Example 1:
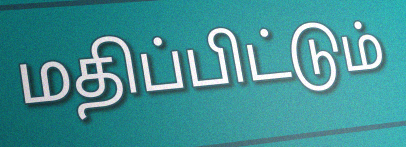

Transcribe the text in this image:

மதிப்பிட்டும்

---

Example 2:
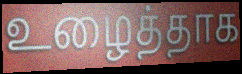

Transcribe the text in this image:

உழைத்தாக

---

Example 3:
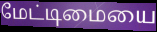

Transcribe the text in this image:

மேட்டிமையை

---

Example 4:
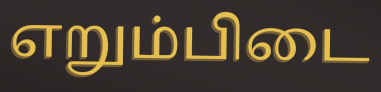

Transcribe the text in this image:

எறும்பிடை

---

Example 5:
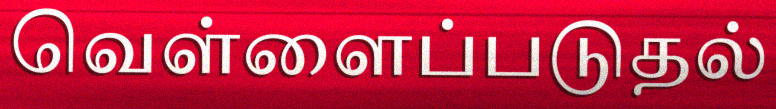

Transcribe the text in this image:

வெள்ளைப்படுதல்